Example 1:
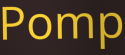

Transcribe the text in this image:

Pomp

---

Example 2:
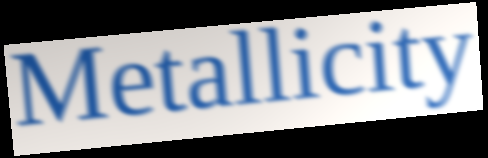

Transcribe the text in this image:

Metallicity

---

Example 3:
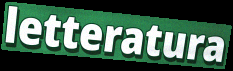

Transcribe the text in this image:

letteratura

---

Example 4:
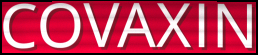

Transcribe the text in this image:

COVAXIN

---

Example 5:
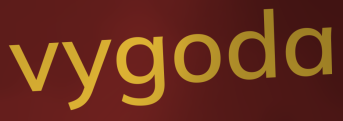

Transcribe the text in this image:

vygoda